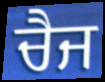
ਚੈਜ